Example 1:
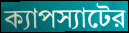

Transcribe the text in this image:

ক্যাপস্যাটের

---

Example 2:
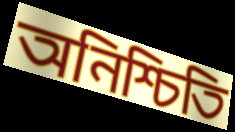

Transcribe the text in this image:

অনিশ্চিতি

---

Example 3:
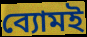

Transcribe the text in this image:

ব্যোমই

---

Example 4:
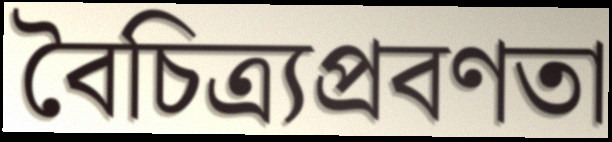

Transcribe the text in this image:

বৈচিত্র্যপ্রবণতা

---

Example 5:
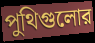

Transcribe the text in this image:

পুথিগুলোর